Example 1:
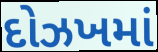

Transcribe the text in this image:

દોઝખમાં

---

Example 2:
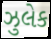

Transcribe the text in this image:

ઝુલેક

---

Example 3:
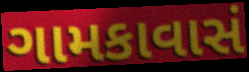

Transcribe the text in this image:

ગામકાવાસં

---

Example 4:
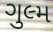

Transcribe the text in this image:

ગુલ્મ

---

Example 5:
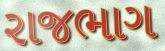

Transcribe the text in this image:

રાજભાગ